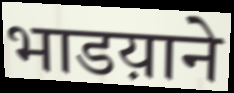
भाडय़ाने